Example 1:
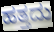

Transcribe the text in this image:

ಹತ್ತದು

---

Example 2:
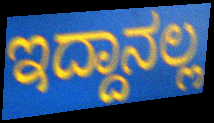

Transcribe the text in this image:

ಇದ್ದಾನಲ್ಲ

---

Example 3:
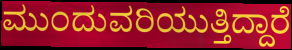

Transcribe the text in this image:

ಮುಂದುವರಿಯುತ್ತಿದ್ದಾರೆ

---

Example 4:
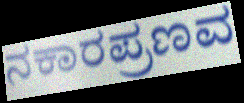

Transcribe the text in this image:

ನಕಾರಪ್ರಣವ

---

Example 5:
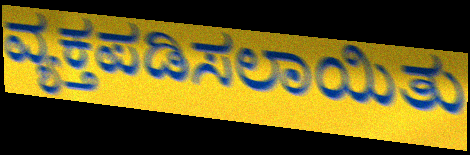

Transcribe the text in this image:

ವ್ಯಕ್ತಪಡಿಸಲಾಯಿತು